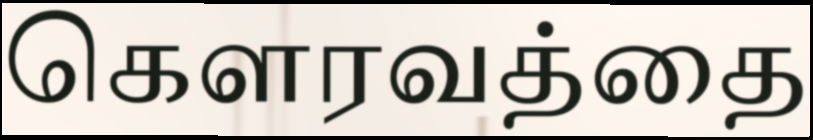
கௌரவத்தை